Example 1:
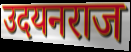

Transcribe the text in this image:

उदयनराज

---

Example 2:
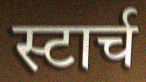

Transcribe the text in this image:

स्टार्च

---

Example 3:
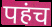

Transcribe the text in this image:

पहंच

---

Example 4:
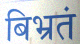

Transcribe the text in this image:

बिभ्रतं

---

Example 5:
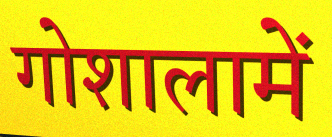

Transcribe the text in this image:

गोशालामें